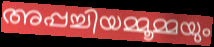
അപ്പച്ചിയമ്മൂമ്മയും